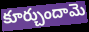
కూర్చుందామె